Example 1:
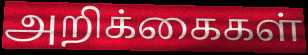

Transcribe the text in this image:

அறிக்கைகள்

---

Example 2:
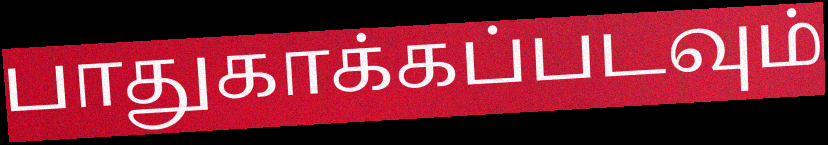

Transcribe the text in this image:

பாதுகாக்கப்படவும்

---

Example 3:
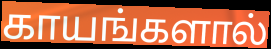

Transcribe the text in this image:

காயங்களால்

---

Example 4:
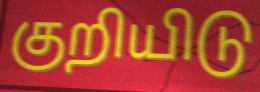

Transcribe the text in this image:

குறியிடு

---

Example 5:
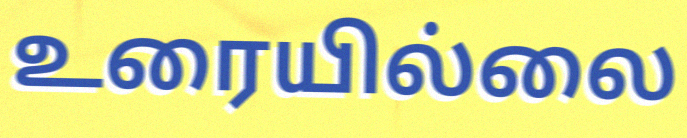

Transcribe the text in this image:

உரையில்லை